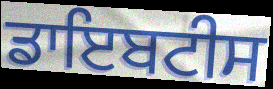
ਡਾਇਬਟੀਸ